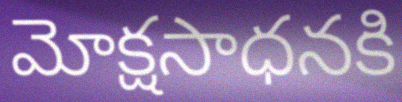
మోక్షసాధనకి